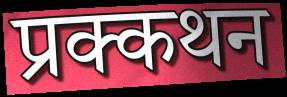
प्रक्कथन